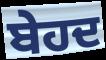
ਬੇਹਦ